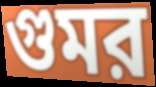
গুমর